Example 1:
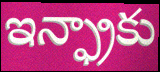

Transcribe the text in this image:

ఇన్ఫ్రాకు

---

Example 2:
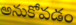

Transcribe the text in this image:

అనుకోవడం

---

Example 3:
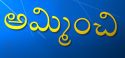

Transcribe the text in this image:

అమ్మించి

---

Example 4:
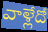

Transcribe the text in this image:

వాళ్లేదో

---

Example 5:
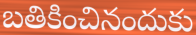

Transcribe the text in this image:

బతికించినందుకు